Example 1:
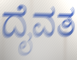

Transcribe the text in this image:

ದೈವತ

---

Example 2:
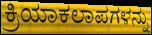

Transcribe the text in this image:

ಕ್ರಿಯಾಕಲಾಪಗಳನ್ನು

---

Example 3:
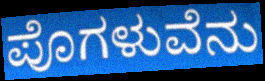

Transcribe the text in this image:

ಪೊಗಳುವೆನು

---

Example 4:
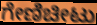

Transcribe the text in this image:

ಗೇಣಿಚೀಟು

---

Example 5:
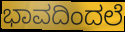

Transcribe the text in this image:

ಭಾವದಿಂದಲೆ